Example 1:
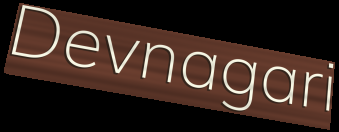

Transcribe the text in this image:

Devnagari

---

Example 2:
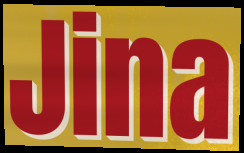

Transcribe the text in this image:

Jina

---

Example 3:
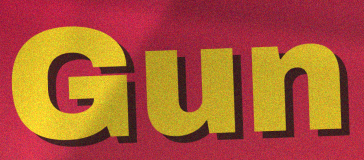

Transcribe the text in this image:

Gun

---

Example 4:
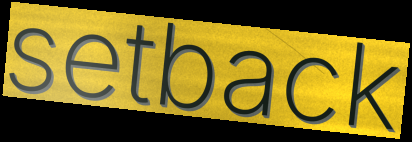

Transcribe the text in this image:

setback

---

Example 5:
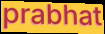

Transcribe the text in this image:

prabhat